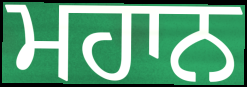
ਮਹਾਨ